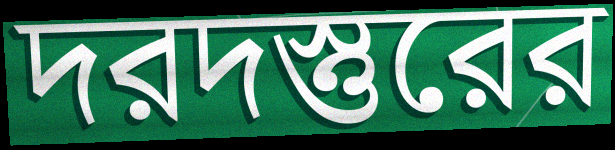
দরদস্তুরের